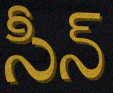
సీన్